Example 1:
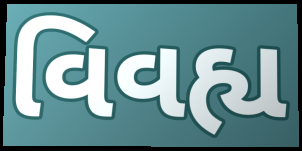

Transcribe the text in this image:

વિવહ્ય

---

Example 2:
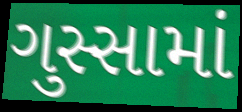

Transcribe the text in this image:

ગુસ્સામાં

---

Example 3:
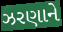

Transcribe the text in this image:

ઝરણાને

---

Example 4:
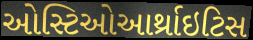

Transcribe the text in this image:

ઓસ્ટિઓઆર્થ્રાઇટિસ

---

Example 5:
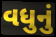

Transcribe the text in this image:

વધુનું